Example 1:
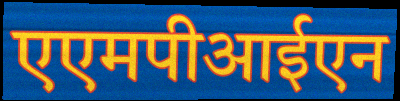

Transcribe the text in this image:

एएमपीआईएन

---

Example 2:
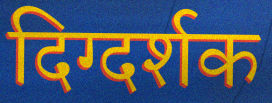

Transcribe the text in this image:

दिग्दर्शक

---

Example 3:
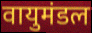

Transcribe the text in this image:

वायुमंडल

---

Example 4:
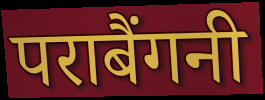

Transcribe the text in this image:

पराबैंगनी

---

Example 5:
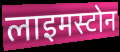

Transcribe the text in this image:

लाइमस्टोन